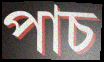
পাচ